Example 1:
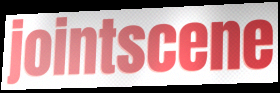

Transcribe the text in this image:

jointscene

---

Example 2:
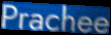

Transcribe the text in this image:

Prachee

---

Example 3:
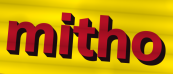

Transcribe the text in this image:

mitho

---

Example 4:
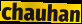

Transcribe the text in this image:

chauhan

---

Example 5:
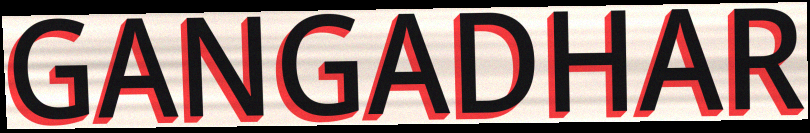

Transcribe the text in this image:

GANGADHAR